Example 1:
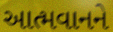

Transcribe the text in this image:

આત્મવાનને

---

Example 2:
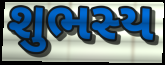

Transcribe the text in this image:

શુભસ્ય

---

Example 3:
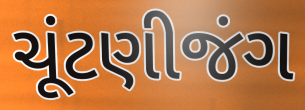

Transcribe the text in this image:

ચૂંટણીજંગ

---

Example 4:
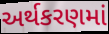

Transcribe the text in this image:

અર્થકરણમાં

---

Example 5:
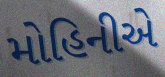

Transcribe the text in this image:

મોહિનીએ